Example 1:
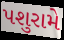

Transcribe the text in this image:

પશુરામે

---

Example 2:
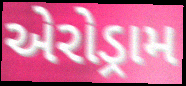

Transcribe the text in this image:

એરોડ્રામ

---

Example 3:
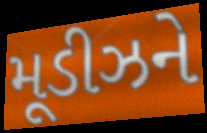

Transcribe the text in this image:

મૂડીઝને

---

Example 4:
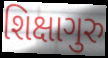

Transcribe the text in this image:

શિક્ષાગુરુ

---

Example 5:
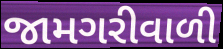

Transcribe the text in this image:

જામગરીવાળી